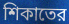
শিকাতের